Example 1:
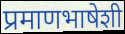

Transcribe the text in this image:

प्रमाणभाषेशी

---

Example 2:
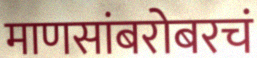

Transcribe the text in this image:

माणसांबरोबरचं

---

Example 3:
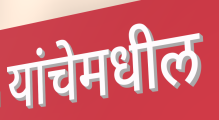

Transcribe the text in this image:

यांचेमधील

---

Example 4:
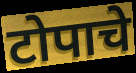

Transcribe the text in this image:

टोपाचे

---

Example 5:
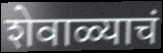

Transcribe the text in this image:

शेवाळ्याचं